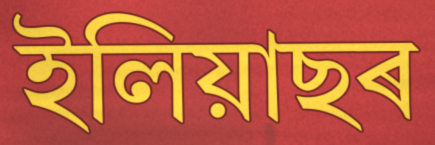
ইলিয়াছৰ